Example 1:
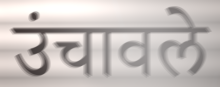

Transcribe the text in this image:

उंचावले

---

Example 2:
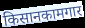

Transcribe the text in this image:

किसानकामगार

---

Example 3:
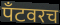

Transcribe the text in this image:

पँटवरच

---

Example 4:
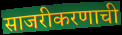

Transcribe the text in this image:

साजरीकरणाची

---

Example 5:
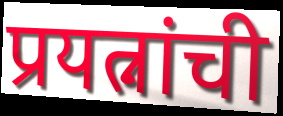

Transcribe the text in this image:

प्रयत्नांची